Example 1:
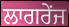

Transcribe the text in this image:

ਲਾਗਰੇਂਜ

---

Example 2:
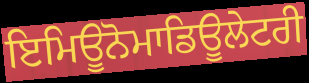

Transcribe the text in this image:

ਇਮਿਊਨੋਮਾਡਿਊਲੇਟਰੀ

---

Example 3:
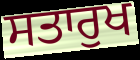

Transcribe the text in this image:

ਸਤਾਰੁਖ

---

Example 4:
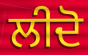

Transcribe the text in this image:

ਲੀਦੋ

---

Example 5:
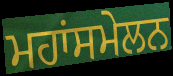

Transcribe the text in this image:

ਮਹਾਂਸਮੇਲਨ